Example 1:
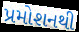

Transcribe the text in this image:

પ્રમોશનથી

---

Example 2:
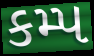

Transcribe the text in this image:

કમ્પ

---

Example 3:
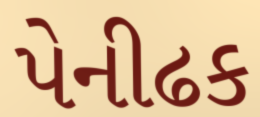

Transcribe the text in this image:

પેનીઢક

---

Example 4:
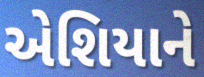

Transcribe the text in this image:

એશિયાને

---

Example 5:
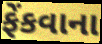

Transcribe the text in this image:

ફેંકવાના